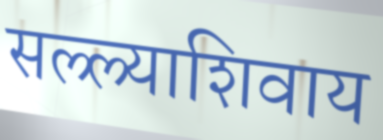
सल्ल्याशिवाय